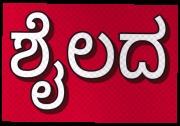
ಶೈಲದ